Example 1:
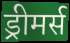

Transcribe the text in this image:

ड्रीमर्स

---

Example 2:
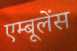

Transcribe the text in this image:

एम्बूलेंस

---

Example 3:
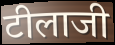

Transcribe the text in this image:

टीलाजी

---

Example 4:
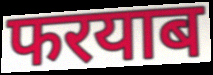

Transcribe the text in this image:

फरयाब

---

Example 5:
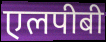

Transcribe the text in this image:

एलपीबी